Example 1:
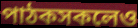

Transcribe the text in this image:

পাঠকসকলেও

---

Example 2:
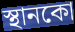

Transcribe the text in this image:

স্থানকো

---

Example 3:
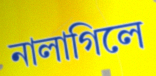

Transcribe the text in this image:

নালাগিলে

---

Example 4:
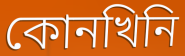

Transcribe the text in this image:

কোনখিনি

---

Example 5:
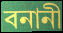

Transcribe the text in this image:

বনানী